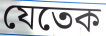
যেতেক